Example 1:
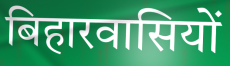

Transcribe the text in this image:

बिहारवासियों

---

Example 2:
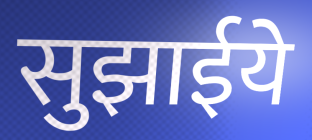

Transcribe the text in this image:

सुझाईये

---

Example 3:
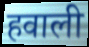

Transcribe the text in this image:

हवाली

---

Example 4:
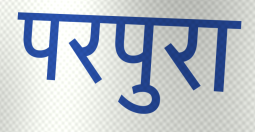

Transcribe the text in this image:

परपुरा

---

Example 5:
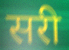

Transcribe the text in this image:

सरी